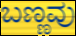
ಬಣ್ಣವು